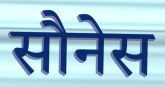
सौनेस